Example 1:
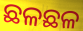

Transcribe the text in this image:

ଛଳଛଳ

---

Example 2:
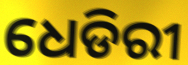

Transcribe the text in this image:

ଧେଡିରୀ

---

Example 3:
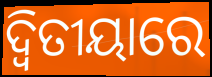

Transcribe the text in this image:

ଦ୍ଵିତୀୟାରେ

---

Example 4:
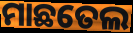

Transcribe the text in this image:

ମାଛତେଲ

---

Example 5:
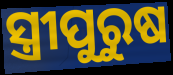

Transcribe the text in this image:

ସ୍ତ୍ରୀପୁରୁଷ